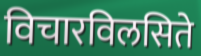
विचारविलसिते